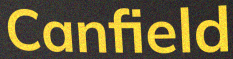
Canfield